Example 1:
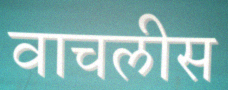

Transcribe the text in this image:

वाचलीस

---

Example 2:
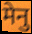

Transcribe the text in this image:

मेनु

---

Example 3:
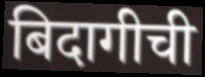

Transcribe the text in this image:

बिदागीची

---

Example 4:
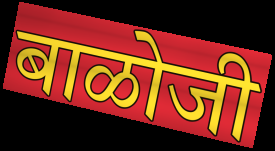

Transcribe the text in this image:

बाळोजी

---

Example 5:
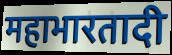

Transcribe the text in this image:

महाभारतादी